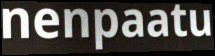
nenpaatu